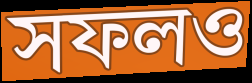
সফলও